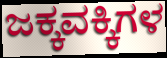
ಜಕ್ಕವಕ್ಕಿಗಳ